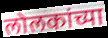
लोलकांच्या